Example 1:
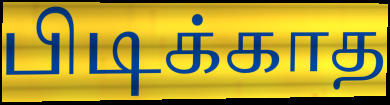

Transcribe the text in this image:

பிடிக்காத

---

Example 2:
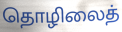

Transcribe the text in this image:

தொழிலைத்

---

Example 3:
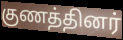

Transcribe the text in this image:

குணத்தினர்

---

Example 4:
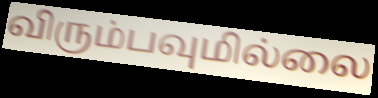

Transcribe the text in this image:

விரும்பவுமில்லை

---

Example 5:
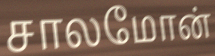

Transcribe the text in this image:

சாலமோன்